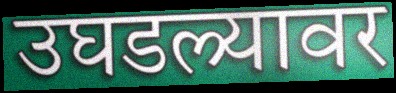
उघडल्यावर